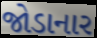
જોડાનાર